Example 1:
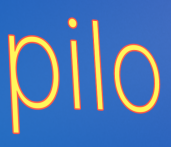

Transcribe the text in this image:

pilo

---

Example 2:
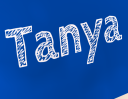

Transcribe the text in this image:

Tanya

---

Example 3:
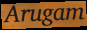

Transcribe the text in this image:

Arugam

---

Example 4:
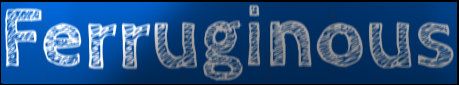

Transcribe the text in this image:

Ferruginous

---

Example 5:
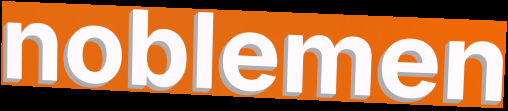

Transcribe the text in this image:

noblemen